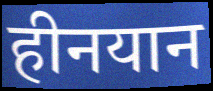
हीनयान